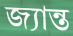
জ্যান্ত